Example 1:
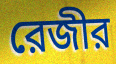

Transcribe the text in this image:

রেজীর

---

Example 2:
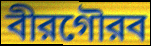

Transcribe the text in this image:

বীরগৌরব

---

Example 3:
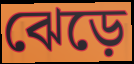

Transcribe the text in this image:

ঝেড়ে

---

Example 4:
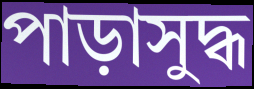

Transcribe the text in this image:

পাড়াসুদ্ধ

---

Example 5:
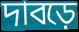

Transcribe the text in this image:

দাবড়ে